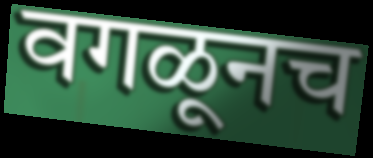
वगळूनच